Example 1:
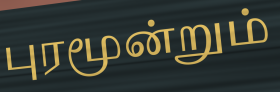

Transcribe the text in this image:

புரமூன்றும்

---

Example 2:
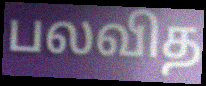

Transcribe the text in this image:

பலவித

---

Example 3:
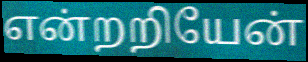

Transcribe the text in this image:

என்றறியேன்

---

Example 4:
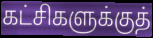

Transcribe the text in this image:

கட்சிகளுக்குத்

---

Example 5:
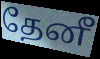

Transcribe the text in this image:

தேனீ